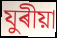
যুৰীয়া